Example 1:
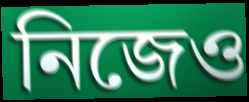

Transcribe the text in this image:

নিজেও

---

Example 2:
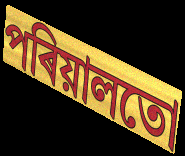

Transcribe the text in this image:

পৰিয়ালতো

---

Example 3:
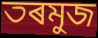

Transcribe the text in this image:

তৰমুজ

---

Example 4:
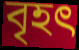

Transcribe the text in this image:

বৃহৎ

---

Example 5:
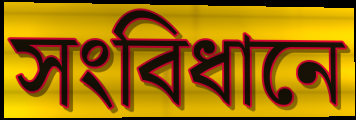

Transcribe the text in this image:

সংবিধানে